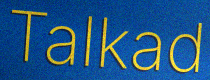
Talkad